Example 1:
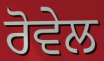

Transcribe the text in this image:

ਰੋਵੇਲ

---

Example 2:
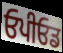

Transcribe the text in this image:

ਓਪੀਓਡ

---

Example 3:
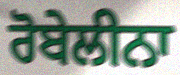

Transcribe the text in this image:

ਰੋਬੇਲੀਨਾ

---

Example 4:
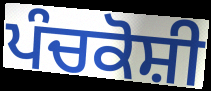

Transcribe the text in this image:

ਪੰਚਕੋਸ਼ੀ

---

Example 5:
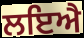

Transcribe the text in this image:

ਲਇਐ